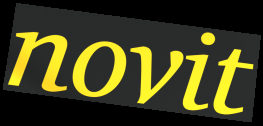
novit